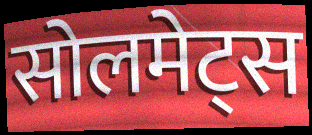
सोलमेट्स